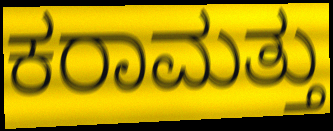
ಕರಾಮತ್ತು